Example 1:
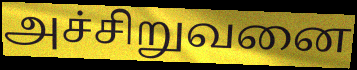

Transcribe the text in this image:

அச்சிறுவனை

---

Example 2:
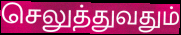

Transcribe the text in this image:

செலுத்துவதும்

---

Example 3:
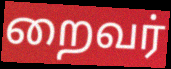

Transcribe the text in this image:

றைவர்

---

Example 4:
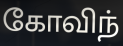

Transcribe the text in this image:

கோவிந்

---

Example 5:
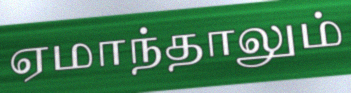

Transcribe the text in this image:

ஏமாந்தாலும்